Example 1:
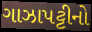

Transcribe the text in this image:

ગાઝાપટ્ટીનો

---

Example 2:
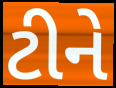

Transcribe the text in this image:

ટીને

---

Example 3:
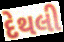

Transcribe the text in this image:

દેથલી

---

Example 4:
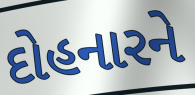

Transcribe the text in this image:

દોહનારને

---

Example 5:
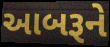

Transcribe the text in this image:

આબરૂને